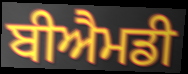
ਬੀਐਮਡੀ